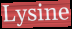
Lysine